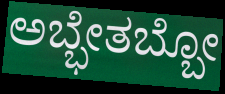
ಅಬ್ಭೇತಬ್ಬೋ